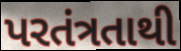
પરતંત્રતાથી